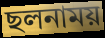
ছলনাময়